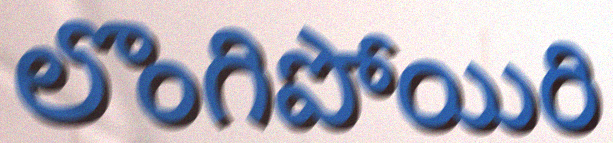
లొంగిపోయిరి